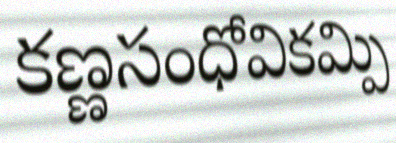
కణ్ణసంధోవికమ్పి